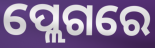
ପ୍ଲେଗରେ